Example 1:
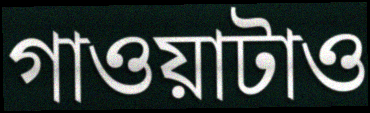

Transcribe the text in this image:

গাওয়াটাও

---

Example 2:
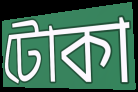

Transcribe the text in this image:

টোকা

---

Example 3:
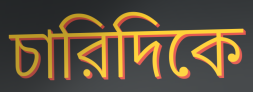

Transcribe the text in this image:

চারিদিকে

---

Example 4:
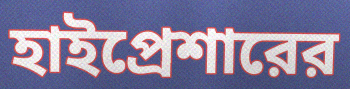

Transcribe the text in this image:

হাইপ্রেশারের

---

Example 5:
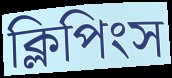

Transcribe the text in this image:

ক্লিপিংস